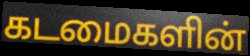
கடமைகளின்